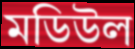
মডিউল